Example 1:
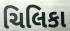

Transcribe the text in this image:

ચિલિકા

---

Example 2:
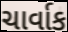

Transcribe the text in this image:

ચાર્વાક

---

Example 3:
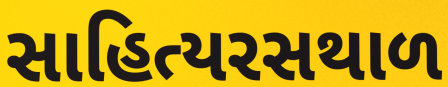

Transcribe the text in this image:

સાહિત્યરસથાળ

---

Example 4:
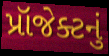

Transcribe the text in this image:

પ્રૉજેક્ટનું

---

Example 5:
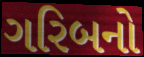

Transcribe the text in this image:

ગરિબનો